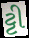
ટ્ટી